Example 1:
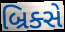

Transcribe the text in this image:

બ્રિક્સે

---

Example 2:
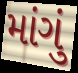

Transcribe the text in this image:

માંગું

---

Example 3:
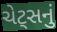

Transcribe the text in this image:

ચેટ્સનું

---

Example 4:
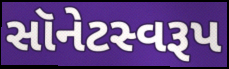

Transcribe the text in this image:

સૉનેટસ્વરૂપ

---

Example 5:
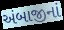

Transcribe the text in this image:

અંબાજીનાં